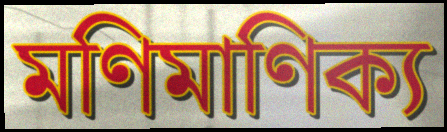
মণিমাণিক্য